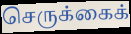
செருக்கைக்